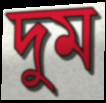
দুম